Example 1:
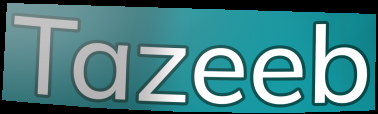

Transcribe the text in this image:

Tazeeb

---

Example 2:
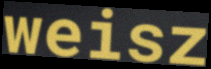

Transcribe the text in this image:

weisz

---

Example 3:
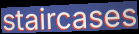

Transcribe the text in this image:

staircases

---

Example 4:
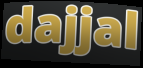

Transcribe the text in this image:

dajjal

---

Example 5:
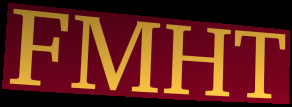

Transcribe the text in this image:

FMHT